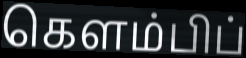
கௌம்பிப்